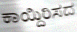
ಕಾಯ್ದಿರಿಸದ